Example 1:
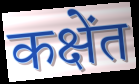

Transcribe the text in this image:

कक्षेंत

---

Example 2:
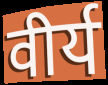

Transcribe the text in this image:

वीर्य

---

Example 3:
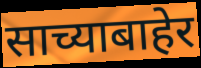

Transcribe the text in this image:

साच्याबाहेर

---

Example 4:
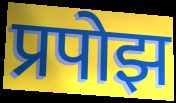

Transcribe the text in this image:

प्रपोझ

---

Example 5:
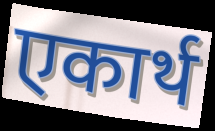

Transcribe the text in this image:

एकार्थ